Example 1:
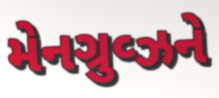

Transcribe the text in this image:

મેનગ્રુવ્ઝને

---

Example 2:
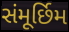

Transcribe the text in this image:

સંમૂર્છિમ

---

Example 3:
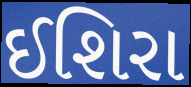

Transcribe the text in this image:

ઈશિરા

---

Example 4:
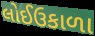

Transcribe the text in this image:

લોઈઉકાળા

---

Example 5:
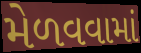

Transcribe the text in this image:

મેળવવામાં